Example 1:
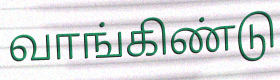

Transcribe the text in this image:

வாங்கிண்டு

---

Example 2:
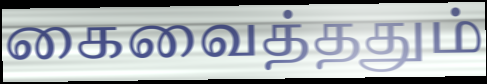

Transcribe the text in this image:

கைவைத்ததும்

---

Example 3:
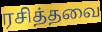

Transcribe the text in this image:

ரசித்தவை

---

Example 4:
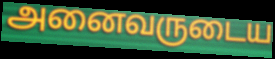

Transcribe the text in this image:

அனைவருடைய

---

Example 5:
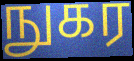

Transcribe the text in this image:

நுகர